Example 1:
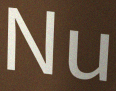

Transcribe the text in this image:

Nu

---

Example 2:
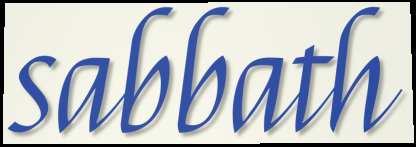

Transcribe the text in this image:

sabbath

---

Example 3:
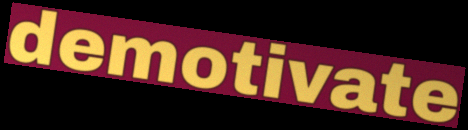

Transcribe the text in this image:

demotivate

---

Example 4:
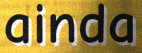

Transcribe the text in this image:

ainda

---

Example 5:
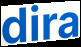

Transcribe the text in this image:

dira